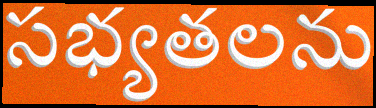
సభ్యతలను